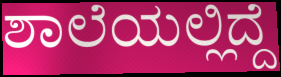
ಶಾಲೆಯಲ್ಲಿದ್ದೆ